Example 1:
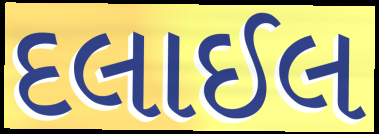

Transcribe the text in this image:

દલાઈલ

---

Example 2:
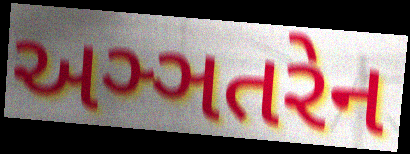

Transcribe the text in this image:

અઞ્ઞતરેન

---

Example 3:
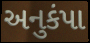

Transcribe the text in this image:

અનુકંપા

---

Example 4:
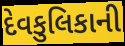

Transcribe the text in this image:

દેવકુલિકાની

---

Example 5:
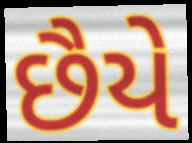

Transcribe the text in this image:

છૈયે